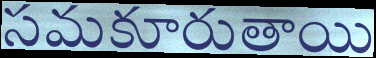
సమకూరుతాయి